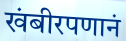
खंबीरपणानं